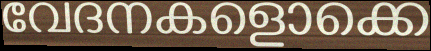
വേദനകളൊക്കെ